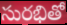
సురభితో